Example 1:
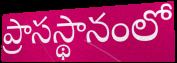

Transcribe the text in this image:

ప్రాసస్థానంలో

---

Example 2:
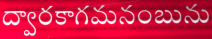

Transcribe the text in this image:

ద్వారకాగమనంబును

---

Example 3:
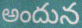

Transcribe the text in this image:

అందున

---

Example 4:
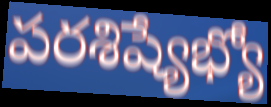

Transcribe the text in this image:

పరశిష్యేభ్యో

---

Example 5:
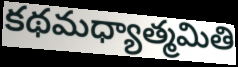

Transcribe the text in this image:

కథమధ్యాత్మమితి